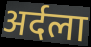
अर्दला